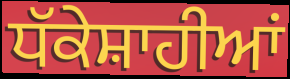
ਧੱਕੇਸ਼ਾਹੀਆਂ